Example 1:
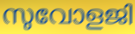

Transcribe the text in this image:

സുവോളജി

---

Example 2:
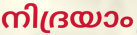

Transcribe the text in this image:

നിദ്രയാം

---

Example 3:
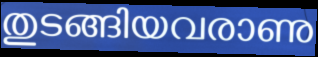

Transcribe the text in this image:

തുടങ്ങിയവരാണു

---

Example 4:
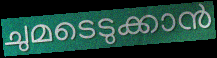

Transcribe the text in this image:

ചുമടെടുക്കാൻ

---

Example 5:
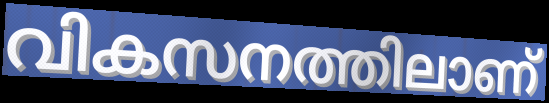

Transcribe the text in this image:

വികസനത്തിലാണ്